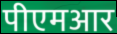
पीएमआर